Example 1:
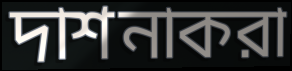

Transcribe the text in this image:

দাশনাকরা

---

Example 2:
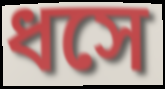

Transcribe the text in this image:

ধসে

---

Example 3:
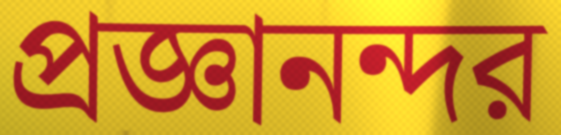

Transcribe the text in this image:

প্রজ্ঞানন্দর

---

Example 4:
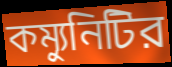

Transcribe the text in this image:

কম্যুনিটির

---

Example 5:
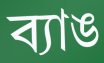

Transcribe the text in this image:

ব্যাঙ